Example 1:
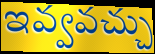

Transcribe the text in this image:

ఇవ్వవచ్చు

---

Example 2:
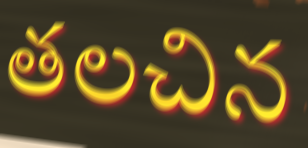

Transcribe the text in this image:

తలచిన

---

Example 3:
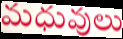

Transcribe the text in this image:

మధువులు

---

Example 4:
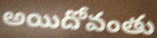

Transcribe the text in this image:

అయిదోవంతు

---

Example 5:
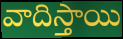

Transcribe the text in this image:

వాదిస్తాయి